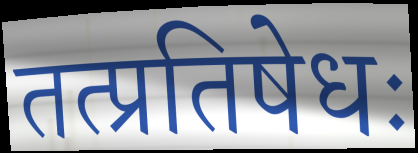
तत्प्रतिषेधः